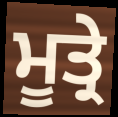
ਮੂਤ੍ਰੇ